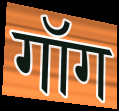
गॉग